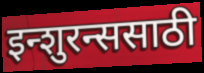
इन्शुरन्ससाठी